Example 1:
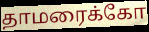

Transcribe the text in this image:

தாமரைக்கோ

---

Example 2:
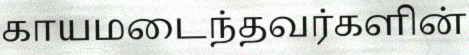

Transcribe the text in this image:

காயமடைந்தவர்களின்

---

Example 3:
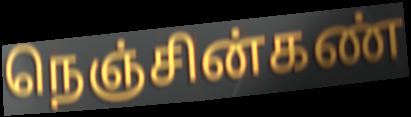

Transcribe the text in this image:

நெஞ்சின்கண்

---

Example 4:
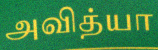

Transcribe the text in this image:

அவித்யா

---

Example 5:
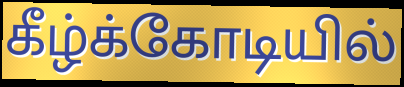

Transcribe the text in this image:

கீழ்க்கோடியில்